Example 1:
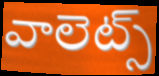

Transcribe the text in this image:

వాలెట్స్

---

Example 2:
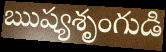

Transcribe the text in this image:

ఋష్యశృంగుడి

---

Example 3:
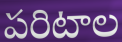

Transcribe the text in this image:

పరిటాల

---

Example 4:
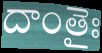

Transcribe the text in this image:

దాంతైః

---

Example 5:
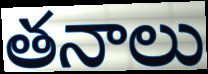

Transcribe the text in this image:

తనాలు